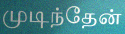
முடிந்தேன்